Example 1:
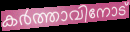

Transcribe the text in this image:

കർത്താവിനോട്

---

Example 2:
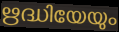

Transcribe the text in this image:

ഋദ്ധിയേയും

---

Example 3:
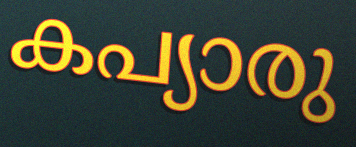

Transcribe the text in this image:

കപ്യാരു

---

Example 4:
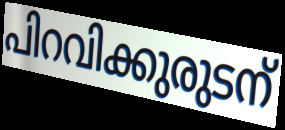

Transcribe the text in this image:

പിറവിക്കുരുടന്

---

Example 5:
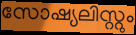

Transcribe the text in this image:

സോഷ്യലിസ്റ്റും